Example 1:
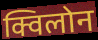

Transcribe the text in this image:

क्विलोन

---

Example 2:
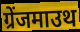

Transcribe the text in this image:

ग्रेंजमाउथ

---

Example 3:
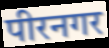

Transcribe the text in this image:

पीरनगर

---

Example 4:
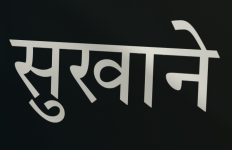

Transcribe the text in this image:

सुखाने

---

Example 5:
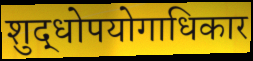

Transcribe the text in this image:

शुद्धोपयोगाधिकार